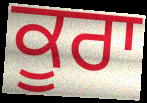
ਕੂਰਾ